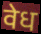
वेध